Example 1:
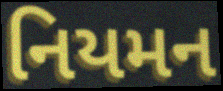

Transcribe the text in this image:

નિયમન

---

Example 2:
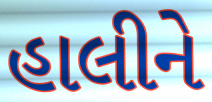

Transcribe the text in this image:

હાલીને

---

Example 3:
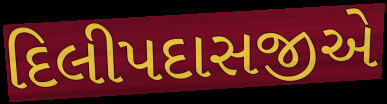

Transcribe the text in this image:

દિલીપદાસજીએ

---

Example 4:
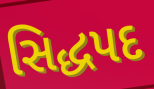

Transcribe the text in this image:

સિદ્ધપદ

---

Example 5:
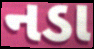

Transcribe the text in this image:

નડા